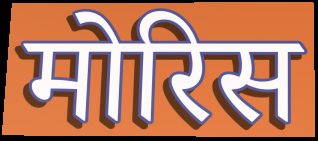
मोरिस